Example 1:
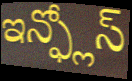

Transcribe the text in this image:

ఇన్ఫ్లోస్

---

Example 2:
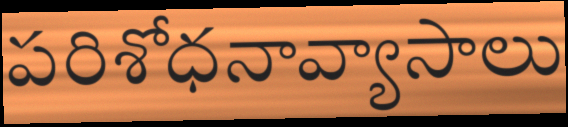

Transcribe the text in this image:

పరిశోధనావ్యాసాలు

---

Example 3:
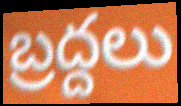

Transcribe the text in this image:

బ్రద్దలు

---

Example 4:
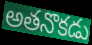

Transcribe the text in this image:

అతనొకడు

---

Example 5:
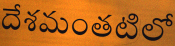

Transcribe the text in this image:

దేశమంతటిలో